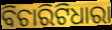
ବିଚାରିଟିଧାରା